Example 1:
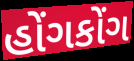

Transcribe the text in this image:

હોંગકોંગ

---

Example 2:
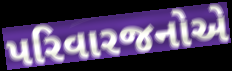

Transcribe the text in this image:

પરિવારજનોએ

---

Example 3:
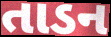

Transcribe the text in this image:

તાડન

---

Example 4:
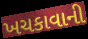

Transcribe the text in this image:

ખચકાવાની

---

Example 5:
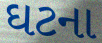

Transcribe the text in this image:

ઘટના